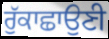
ਰੁੱਕਾਛਾਉਣੀ